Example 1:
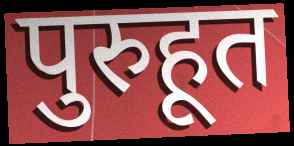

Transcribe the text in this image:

पुरुहूत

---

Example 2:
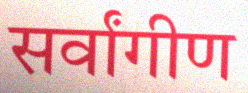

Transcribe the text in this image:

सर्वांगीण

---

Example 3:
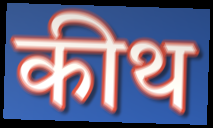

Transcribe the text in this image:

कीथ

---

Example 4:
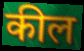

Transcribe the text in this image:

कील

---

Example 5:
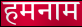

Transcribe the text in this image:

हमनाम